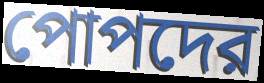
পোপদের